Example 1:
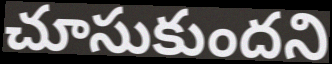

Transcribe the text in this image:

చూసుకుందని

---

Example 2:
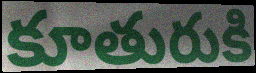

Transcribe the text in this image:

కూతురుకి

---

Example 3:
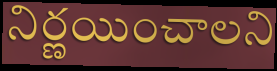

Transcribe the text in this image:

నిర్ణయించాలని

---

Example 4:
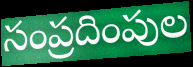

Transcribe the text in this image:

సంప్రదింపుల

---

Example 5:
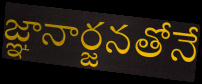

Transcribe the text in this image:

జ్ఞానార్జనతోనే